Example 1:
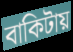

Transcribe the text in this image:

বাকিটায়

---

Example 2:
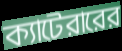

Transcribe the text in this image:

ক্যাটেরারের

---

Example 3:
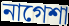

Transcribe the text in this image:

নাগেশা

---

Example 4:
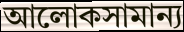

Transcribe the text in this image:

আলোকসামান্য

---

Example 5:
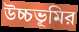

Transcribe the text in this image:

উচ্চভূমির